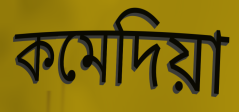
কমেদিয়া